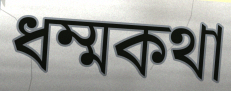
ধম্মকথা